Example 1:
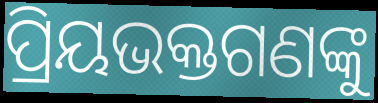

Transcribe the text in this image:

ପ୍ରିୟଭକ୍ତଗଣଙ୍କୁ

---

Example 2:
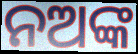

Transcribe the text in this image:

ନଅଙ୍କ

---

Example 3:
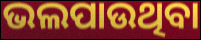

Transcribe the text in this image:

ଭଲପାଉଥିବା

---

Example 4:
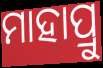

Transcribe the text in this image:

ମାହାପ୍ରୁ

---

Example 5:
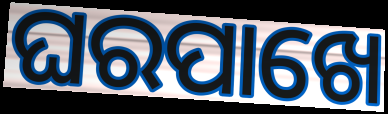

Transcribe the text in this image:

ଘରପାଖେ